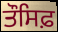
ਤੌਸਿਫ਼